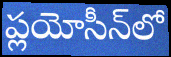
ప్లయోసీన్‌లో